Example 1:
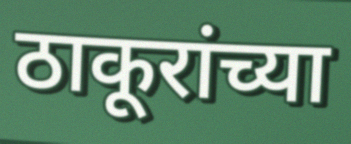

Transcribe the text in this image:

ठाकूरांच्या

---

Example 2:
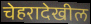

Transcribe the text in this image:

चेहरादेखील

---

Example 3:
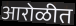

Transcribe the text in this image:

आरोळीत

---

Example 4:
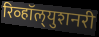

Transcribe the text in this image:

रिव्हॉल्युशनरी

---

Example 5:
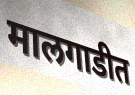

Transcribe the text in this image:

मालगाडीत